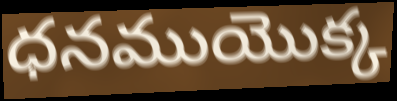
ధనముయొక్క